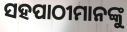
ସହପାଠୀମାନଙ୍କୁ